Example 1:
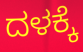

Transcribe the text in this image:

ದಳಕ್ಕೆ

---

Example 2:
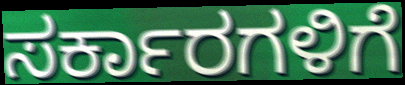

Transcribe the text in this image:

ಸರ್ಕಾರಗಳಿಗೆ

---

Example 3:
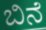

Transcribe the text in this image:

ಬಿನೆ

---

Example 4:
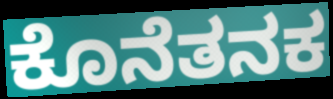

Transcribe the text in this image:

ಕೊನೆತನಕ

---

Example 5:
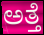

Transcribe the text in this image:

ಅತ್ತೆ